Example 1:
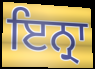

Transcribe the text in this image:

ਇਨ੍ਰਾ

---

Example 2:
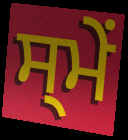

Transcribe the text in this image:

ਸ੍ਮੇਂ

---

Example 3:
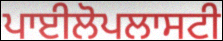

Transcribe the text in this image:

ਪਾਈਲੋਪਲਾਸਟੀ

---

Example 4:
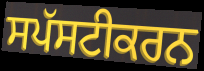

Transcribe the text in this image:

ਸਪੱਸਟੀਕਰਨ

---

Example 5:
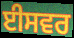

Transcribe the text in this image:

ਈਸਵਰ